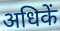
अधिकें